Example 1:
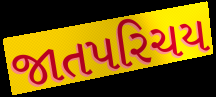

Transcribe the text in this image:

જાતપરિચય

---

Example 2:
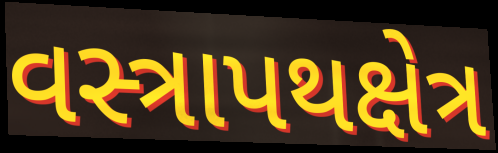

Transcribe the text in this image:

વસ્ત્રાપથક્ષેત્ર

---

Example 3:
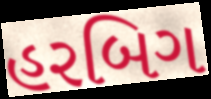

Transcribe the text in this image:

હરબિગ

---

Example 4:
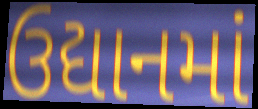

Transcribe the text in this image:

ઉદ્યાનમાં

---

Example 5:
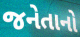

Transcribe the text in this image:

જનેતાનો